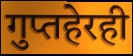
गुप्तहेरही